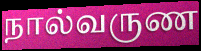
நால்வருண